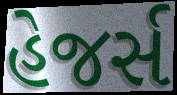
હેજર્સ